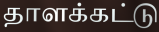
தாளக்கட்டு